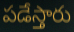
పడేస్తారు